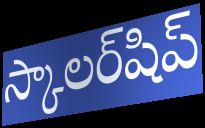
స్కాలర్‌షిప్